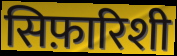
सिफ़ारिशी